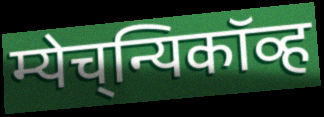
म्येच्‌न्यिकॉव्ह